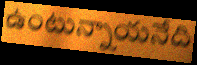
ఉంటున్నాయనేది